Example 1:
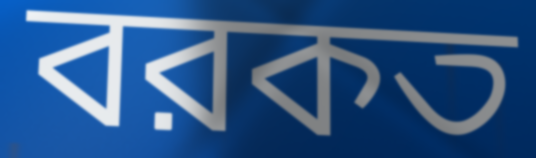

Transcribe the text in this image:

বরকত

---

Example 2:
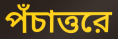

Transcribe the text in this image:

পঁচাত্তরে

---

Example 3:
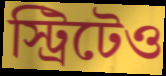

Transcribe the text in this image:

স্ট্রিটেও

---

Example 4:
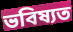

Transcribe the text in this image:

ভবিষ্যত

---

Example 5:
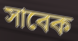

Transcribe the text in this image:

সাবেক